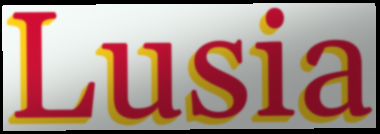
Lusia